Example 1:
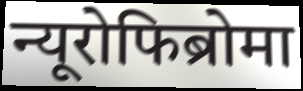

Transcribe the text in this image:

न्यूरोफिब्रोमा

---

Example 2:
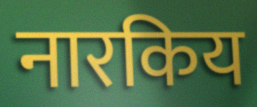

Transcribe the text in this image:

नारकिय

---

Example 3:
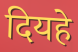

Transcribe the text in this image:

दियहे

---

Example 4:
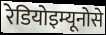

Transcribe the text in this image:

रेडियोइम्यूनोसे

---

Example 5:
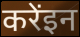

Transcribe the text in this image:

करेंइन